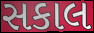
સકાલ